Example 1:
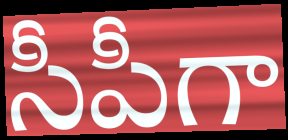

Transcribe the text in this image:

సీపీగా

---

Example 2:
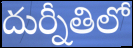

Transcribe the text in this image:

దుర్నీతిలో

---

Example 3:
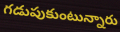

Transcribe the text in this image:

గడుపుకుంటున్నారు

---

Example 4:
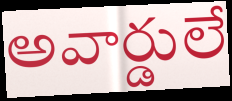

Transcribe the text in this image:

అవార్డులే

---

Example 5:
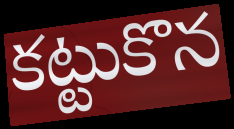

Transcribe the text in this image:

కట్టుకొన